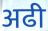
अढी